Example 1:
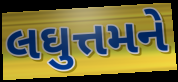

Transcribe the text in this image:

લઘુત્તમને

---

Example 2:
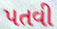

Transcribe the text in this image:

પતવી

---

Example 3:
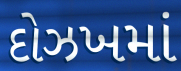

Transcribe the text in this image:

દોઝખમાં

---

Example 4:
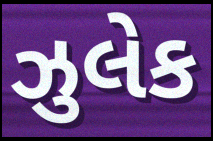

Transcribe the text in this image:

ઝુલેક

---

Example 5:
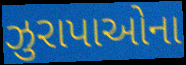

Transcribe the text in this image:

ઝુરાપાઓના